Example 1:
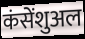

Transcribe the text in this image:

कंसेंशुअल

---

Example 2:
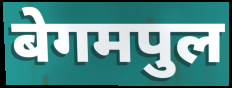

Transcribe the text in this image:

बेगमपुल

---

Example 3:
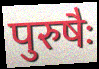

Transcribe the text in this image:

पुरुषैः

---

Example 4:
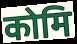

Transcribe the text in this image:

कोमि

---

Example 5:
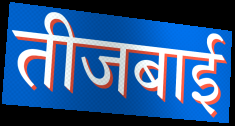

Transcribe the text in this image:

तीजबाई